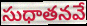
సుధాతనవే